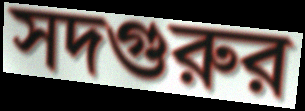
সদগুরুর